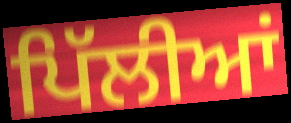
ਪਿੱਲੀਆਂ